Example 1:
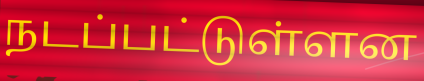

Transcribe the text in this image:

நடப்பட்டுள்ளன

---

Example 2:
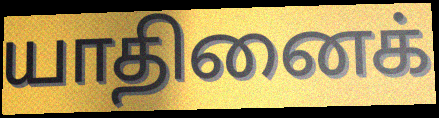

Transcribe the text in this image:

யாதினைக்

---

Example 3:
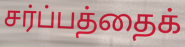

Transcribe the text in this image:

சர்ப்பத்தைக்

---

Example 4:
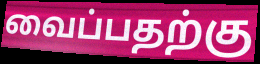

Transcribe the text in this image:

வைப்பதற்கு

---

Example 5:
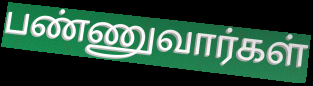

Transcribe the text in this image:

பண்ணுவார்கள்